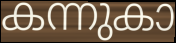
കന്നുകാ